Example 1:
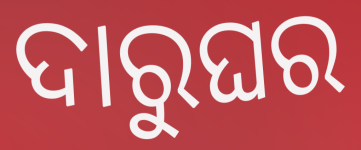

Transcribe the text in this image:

ଦାରୁଘର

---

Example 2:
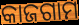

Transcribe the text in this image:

କାଜଗାମ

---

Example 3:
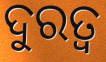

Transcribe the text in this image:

ଦୁରତ୍ଵ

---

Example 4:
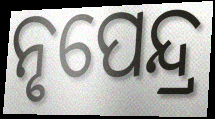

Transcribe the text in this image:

ନୃପେନ୍ଦ୍ର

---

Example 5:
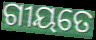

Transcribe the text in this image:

ଗୀୟତେ